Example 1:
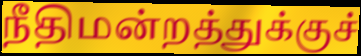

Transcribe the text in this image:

நீதிமன்றத்துக்குச்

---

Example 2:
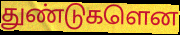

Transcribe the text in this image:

துண்டுகளென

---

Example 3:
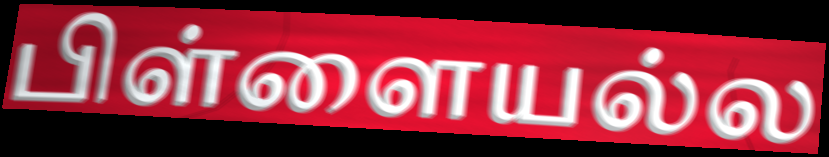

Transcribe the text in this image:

பிள்ளையல்ல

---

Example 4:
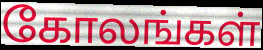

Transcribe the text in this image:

கோலங்கள்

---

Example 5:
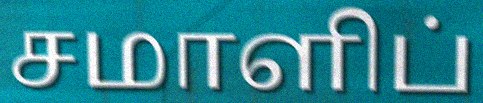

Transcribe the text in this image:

சமாளிப்